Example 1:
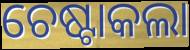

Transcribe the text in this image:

ଚେଷ୍ଟାକଲା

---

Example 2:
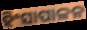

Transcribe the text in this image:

ହିଂସାପାଳନ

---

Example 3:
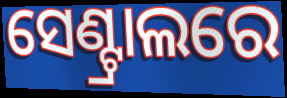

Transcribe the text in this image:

ସେଣ୍ଟ୍ରାଲରେ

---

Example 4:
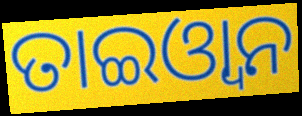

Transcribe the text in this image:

ତାଇଓ୍ୱାନ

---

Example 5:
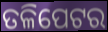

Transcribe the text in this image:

ତଳିପେଟର